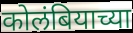
कोलंबियाच्या